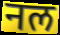
नल